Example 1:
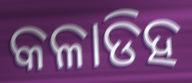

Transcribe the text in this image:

କଳାଡିହ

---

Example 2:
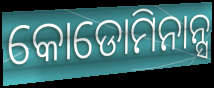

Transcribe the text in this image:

କୋଡୋମିନାନ୍ସ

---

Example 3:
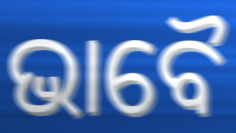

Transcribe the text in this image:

ଭାବୈ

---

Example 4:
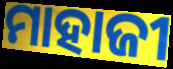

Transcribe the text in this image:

ମାହାଜୀ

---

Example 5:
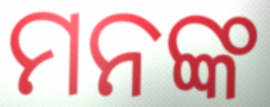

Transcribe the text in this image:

ମନଙ୍କ